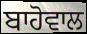
ਬਾਹੋਵਾਲ